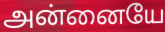
அன்னையே